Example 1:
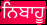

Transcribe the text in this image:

ਨਿਬਾਹੂ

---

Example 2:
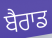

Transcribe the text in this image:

ਬੈਰਾਡ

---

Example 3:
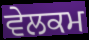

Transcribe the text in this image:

ਵੇਲਕਮ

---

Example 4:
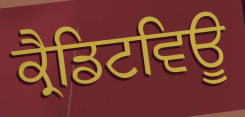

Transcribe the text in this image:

ਕ੍ਰੈਡਿਟਵਿਊ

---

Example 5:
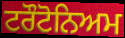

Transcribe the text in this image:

ਟਰੌਟੋਨਿਅਮ